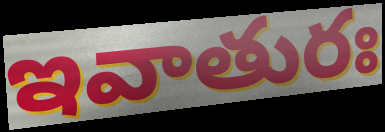
ఇవాతురః